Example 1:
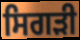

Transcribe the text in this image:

ਸਿਗੜੀ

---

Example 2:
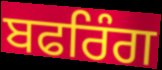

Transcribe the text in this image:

ਬਫਰਿੰਗ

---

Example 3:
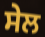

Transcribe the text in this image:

ਸੇਲ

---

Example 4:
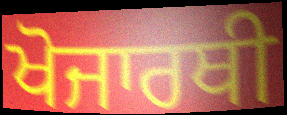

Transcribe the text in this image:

ਖੋਜਾਰਥੀ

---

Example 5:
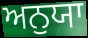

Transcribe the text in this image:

ਅਨੁਯਾ